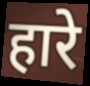
हारे